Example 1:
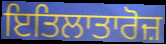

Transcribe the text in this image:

ਇਤਿਲਾਤਾਰੋਜ਼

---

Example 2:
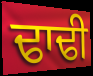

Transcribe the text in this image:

ਢਾਢੀ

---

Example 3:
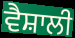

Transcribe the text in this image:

ਵੈਸ਼ਾਲੀ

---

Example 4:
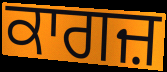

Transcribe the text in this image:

ਕਾਗਜ਼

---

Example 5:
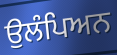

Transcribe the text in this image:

ਉਲੰਪਿਅਨ